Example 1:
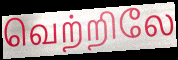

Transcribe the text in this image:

வெற்றிலே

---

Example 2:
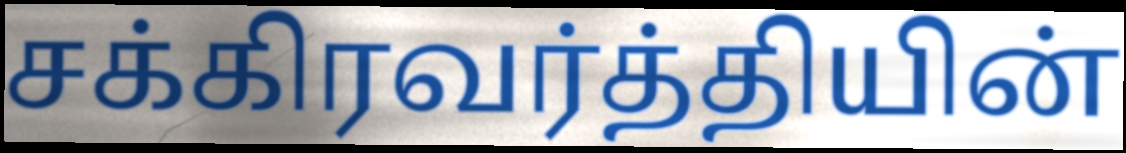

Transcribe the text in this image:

சக்கிரவர்த்தியின்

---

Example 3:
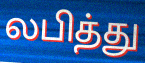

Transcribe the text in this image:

லபித்து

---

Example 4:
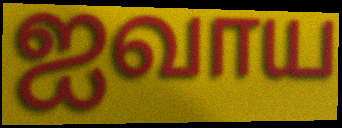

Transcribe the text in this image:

ஐவாய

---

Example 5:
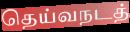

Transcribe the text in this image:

தெய்வநடத்